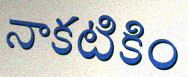
నాకటికిం